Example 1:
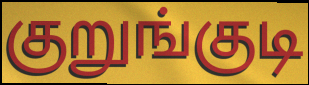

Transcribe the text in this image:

குறுங்குடி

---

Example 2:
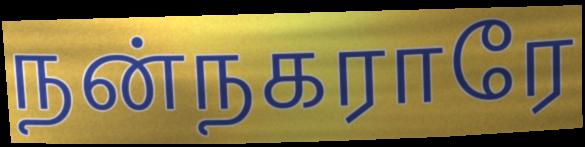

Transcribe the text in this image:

நன்நகராரே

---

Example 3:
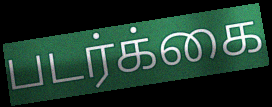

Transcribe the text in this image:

படர்க்கை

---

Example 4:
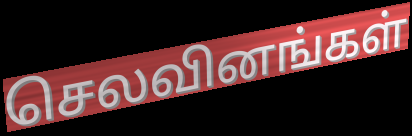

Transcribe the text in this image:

செலவினங்கள்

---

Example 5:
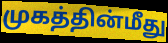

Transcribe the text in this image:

முகத்தின்மீது